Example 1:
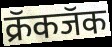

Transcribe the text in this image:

क्रॅकजॅक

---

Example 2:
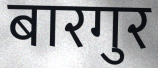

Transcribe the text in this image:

बारगुर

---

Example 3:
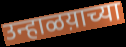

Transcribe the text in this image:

उन्हाळय़ाच्या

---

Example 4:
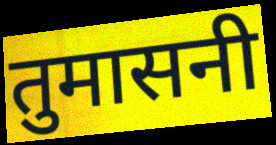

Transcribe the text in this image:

तुमासनी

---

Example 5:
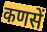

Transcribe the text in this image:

कणसें